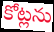
కోట్లను